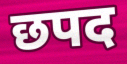
छपद